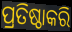
ପ୍ରତିଷ୍ଠାକରି